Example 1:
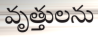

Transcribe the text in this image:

వృత్తులను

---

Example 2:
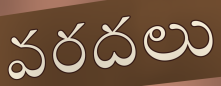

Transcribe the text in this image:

వరదలు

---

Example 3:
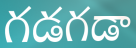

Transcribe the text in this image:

గడగడా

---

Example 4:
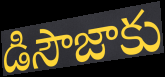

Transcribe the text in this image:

డిసౌజాకు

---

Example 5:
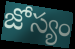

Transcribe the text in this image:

జోస్యం